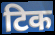
टिक